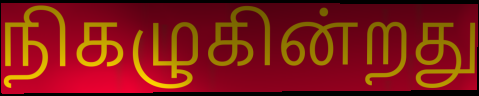
நிகழுகின்றது